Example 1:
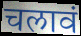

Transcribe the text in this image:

चलावं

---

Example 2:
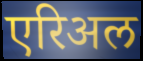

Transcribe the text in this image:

एरिअल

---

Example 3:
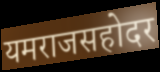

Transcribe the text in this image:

यमराजसहोदर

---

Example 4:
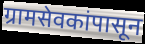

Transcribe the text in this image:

ग्रामसेवकांपासून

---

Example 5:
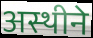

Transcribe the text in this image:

अस्थीने